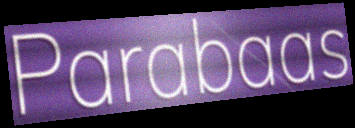
Parabaas